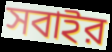
সবাইর